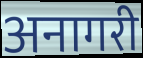
अनागरी